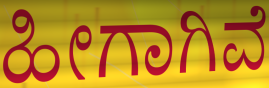
ಹೀಗಾಗಿವೆ